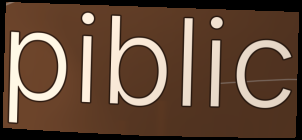
piblic